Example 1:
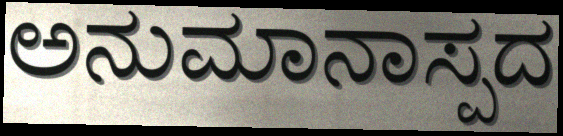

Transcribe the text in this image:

ಅನುಮಾನಾಸ್ಪದ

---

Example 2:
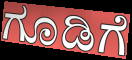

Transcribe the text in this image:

ಗೂಡಿಗೆ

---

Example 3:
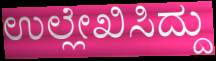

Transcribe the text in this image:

ಉಲ್ಲೇಖಿಸಿದ್ದು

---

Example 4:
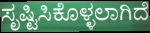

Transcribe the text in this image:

ಸೃಷ್ಟಿಸಿಕೊಳ್ಳಲಾಗಿದೆ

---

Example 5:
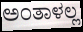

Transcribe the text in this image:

ಅಂತಾಳಲ್ಲ